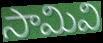
సామివి